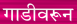
गाडीवरून